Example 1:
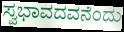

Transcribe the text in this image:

ಸ್ವಭಾವದವನೆಂದು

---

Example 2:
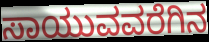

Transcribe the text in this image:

ಸಾಯುವವರೆಗಿನ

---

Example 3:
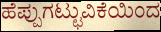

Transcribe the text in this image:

ಹೆಪ್ಪುಗಟ್ಟುವಿಕೆಯಿಂದ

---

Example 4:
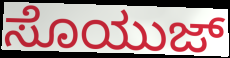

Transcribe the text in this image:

ಸೊಯುಜ್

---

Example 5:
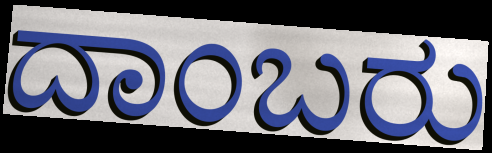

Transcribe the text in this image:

ದಾಂಬರು